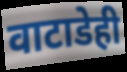
वाटाडेही